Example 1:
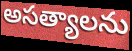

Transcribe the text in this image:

అసత్యాలను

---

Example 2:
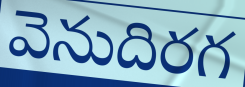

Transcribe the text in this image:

వెనుదిరగ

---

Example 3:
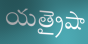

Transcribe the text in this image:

యత్రైషా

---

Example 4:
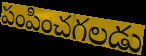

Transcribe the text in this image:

పంపించగలడు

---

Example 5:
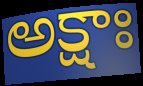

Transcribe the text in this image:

అక్షాః